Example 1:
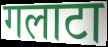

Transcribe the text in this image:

गलाटा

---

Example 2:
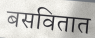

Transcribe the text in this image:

बसवितात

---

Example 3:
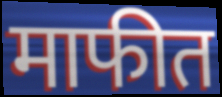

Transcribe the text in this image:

माफीत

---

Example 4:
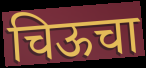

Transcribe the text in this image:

चिऊचा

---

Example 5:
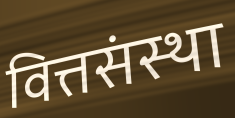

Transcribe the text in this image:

वित्तसंस्था